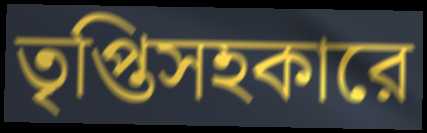
তৃপ্তিসহকারে